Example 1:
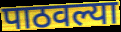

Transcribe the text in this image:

पाठवल्या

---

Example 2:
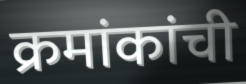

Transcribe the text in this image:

क्रमांकांची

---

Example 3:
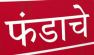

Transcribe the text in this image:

फंडाचे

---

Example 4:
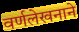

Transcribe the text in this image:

वर्णलेखनाने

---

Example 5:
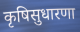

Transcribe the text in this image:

कृषिसुधारणा